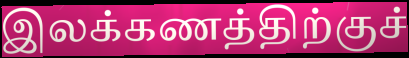
இலக்கணத்திற்குச்